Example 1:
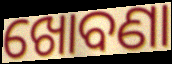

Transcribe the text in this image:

ଖୋବଣା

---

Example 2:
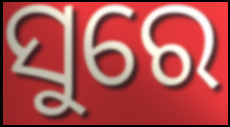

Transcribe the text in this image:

ସୁରେ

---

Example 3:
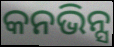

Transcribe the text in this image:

କନଭିନ୍ସ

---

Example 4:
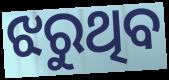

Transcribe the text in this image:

ଝରୁଥିବ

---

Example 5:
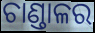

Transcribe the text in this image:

ଚାଣ୍ଡାଳର